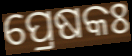
ପ୍ରେଷକଃ